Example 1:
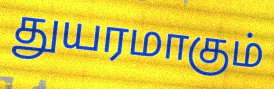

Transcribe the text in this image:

துயரமாகும்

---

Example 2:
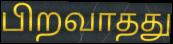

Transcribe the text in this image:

பிறவாதது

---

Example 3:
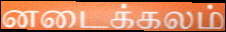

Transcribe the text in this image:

னடைக்கலம்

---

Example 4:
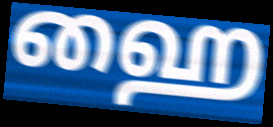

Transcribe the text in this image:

ஹை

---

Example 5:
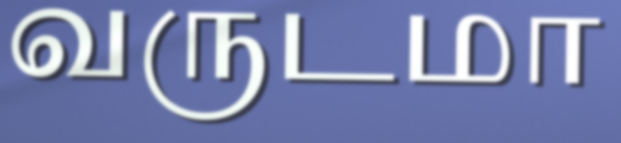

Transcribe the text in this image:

வருடமா